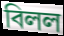
বিলল